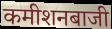
कमीशनबाजी